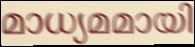
മാധ്യമമായി